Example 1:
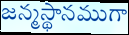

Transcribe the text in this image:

జన్మస్థానముగా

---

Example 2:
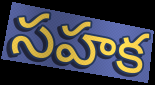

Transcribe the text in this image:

సహక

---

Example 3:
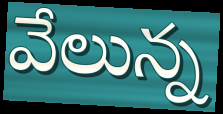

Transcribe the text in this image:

వేలున్న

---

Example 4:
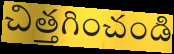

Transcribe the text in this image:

చిత్తగించండి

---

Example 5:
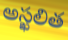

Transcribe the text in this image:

అస్ఖలిత